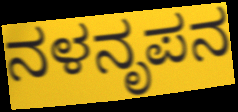
ನಳನೃಪನ